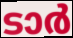
ടാർ